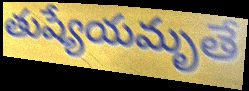
తుష్యేయమృతే